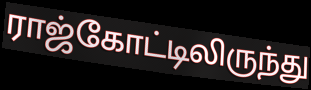
ராஜ்கோட்டிலிருந்து